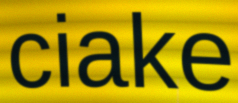
ciake